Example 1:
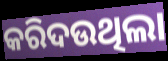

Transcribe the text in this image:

କରିଦଉଥିଲା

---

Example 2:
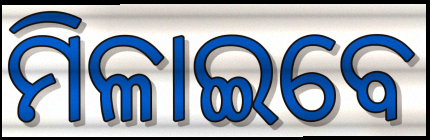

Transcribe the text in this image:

ମିଳାଇବେ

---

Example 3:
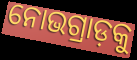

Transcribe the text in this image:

ନୋଭଗ୍ରାଡ଼କୁ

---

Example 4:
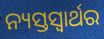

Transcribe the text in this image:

ନ୍ୟସ୍ତସ୍ଵାର୍ଥର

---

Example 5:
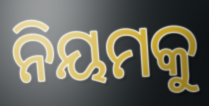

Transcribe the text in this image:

ନିୟମକୁ